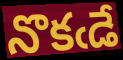
నొకఁడే